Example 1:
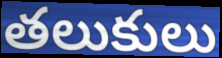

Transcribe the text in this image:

తలుకులు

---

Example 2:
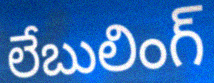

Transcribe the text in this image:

లేబులింగ్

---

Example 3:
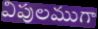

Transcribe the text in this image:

విపులముగా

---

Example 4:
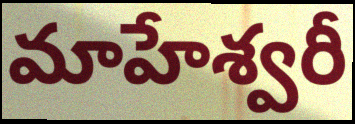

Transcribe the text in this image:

మాహేశ్వరీ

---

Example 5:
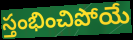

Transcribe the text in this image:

స్తంభించిపోయే